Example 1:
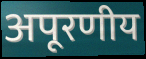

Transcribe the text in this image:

अपूरणीय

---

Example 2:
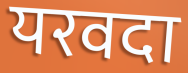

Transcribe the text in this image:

यरवदा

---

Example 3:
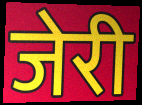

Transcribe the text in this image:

जेरी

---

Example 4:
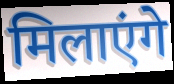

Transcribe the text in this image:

मिलाएंगे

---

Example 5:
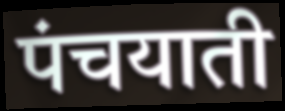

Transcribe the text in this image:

पंचयाती